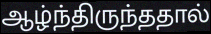
ஆழ்ந்திருந்ததால்